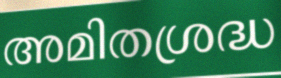
അമിതശ്രദ്ധ